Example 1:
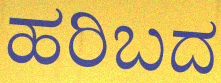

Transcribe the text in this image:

ಹರಿಬದ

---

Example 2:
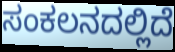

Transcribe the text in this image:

ಸಂಕಲನದಲ್ಲಿದೆ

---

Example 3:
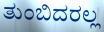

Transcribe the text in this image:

ತುಂಬಿದರಲ್ಲ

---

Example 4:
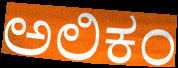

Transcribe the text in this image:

ಅಲಿಕಂ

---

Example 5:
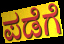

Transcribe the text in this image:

ಪಡೆಗೆ